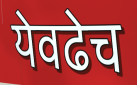
येवढेच